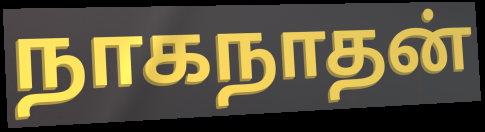
நாகநாதன்